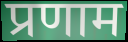
प्रणाम